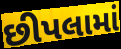
છીપલામાં